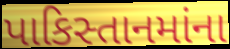
પાકિસ્તાનમાંના